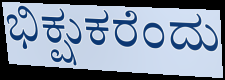
ಭಿಕ್ಷುಕರೆಂದು